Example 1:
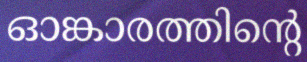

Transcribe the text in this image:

ഓങ്കാരത്തിന്റെ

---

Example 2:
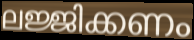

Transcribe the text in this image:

ലജ്ജിക്കണം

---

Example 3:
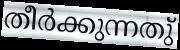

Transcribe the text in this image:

തീർക്കുന്നതു്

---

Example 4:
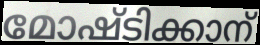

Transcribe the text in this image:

മോഷ്ടിക്കാന്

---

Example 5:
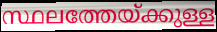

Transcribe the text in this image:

സ്ഥലത്തേയ്ക്കുള്ള